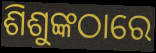
ଶିଶୁଙ୍କଠାରେ